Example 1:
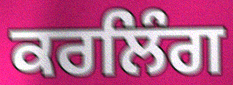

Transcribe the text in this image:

ਕਰਲਿੰਗ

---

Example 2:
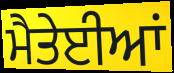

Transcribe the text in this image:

ਮੈਤੇਈਆਂ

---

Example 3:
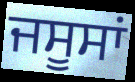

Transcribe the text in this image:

ਜਸੂਸਾਂ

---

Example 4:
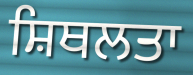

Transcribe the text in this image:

ਸ਼ਿਥਲਤਾ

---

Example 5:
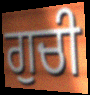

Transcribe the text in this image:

ਗੁਚੀ